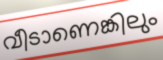
വീടാണെങ്കിലും